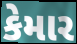
કેમાર